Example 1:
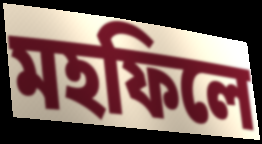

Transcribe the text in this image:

মহফিলে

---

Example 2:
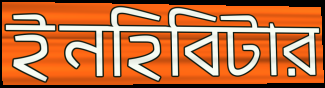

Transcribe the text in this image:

ইনহিবিটার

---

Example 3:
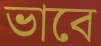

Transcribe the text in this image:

ভাবে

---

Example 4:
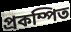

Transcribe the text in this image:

প্রকম্পিত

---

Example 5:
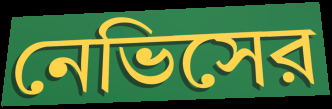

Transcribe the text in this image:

নেভিসের